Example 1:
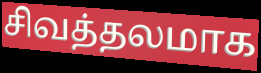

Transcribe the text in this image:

சிவத்தலமாக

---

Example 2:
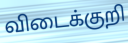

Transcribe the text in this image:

விடைக்குறி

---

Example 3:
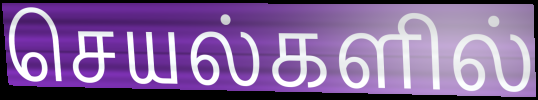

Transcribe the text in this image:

செயல்களில்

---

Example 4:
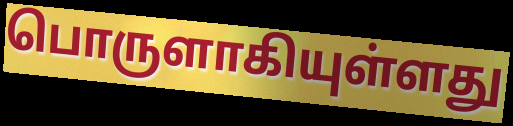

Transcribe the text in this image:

பொருளாகியுள்ளது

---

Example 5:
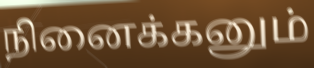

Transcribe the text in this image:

நினைக்கனும்